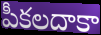
పీకలదాకా